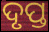
ଦୃପ୍ତ